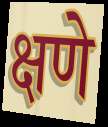
क्षणे